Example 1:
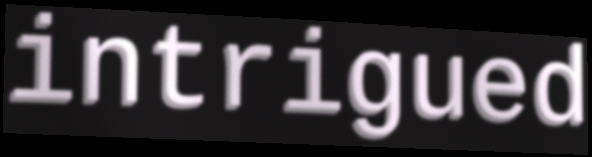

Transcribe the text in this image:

intrigued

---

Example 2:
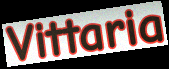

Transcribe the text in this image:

Vittaria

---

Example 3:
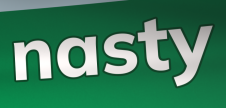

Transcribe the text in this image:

nasty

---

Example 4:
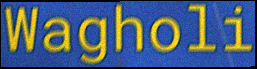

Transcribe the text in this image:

Wagholi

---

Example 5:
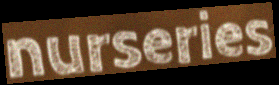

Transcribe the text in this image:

nurseries